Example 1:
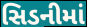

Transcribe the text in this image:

સિડનીમાં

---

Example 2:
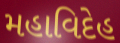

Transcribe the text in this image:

મહાવિદેહ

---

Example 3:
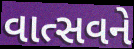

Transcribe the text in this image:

વાત્સવને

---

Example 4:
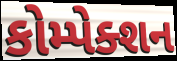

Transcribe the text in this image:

કોમ્પેક્શન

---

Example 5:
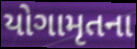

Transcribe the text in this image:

યોગામૃતના